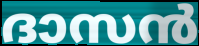
ദാസൻ